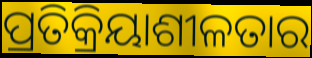
ପ୍ରତିକ୍ରିୟାଶୀଳତାର